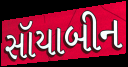
સૉયાબીન